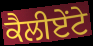
ਕੈਲੀਏਂਟੇ